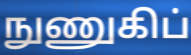
நுணுகிப்